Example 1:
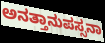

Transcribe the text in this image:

ಅನತ್ತಾನುಪಸ್ಸನಾ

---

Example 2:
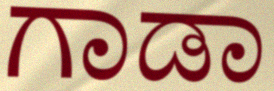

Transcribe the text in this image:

ಗಾಡಾ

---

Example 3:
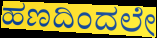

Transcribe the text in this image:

ಹಣದಿಂದಲೇ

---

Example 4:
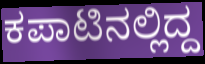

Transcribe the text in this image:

ಕಪಾಟಿನಲ್ಲಿದ್ದ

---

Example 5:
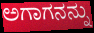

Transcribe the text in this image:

ಅಗಾಗನನ್ನು